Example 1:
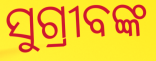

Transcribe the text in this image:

ସୁଗ୍ରୀବଙ୍କ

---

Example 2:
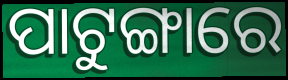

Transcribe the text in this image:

ପାଟୁଙ୍ଗାରେ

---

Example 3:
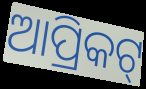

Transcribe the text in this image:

ଆପ୍ରିକଟ୍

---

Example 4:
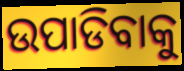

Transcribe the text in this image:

ଉପାଡିବାକୁ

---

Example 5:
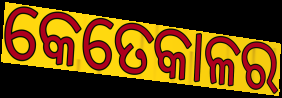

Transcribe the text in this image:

କେତେକାଳର